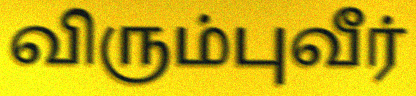
விரும்புவீர்